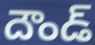
దౌండ్